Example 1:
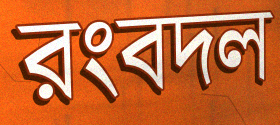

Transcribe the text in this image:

রংবদল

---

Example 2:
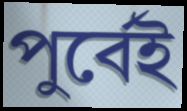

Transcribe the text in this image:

পুর্বেই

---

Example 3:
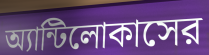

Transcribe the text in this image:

অ্যান্টিলোকাসের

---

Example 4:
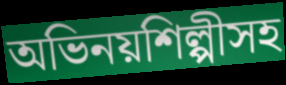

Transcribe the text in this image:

অভিনয়শিল্পীসহ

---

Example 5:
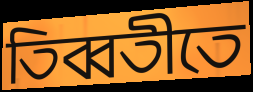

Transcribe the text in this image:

তিব্বতীতে